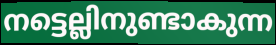
നട്ടെല്ലിനുണ്ടാകുന്ന